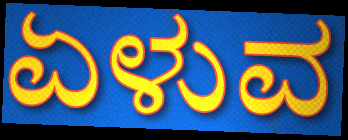
ಏಳುವ